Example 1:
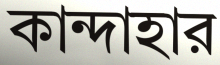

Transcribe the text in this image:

কান্দাহার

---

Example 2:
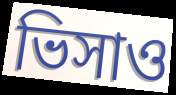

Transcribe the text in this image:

ভিসাও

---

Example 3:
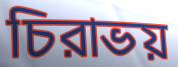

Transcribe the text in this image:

চিরাভয়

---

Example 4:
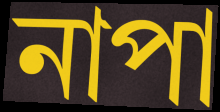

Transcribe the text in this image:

নাপা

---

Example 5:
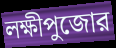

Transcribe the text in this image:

লক্ষীপুজোর